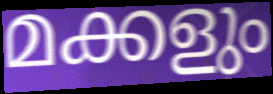
മക്കളും